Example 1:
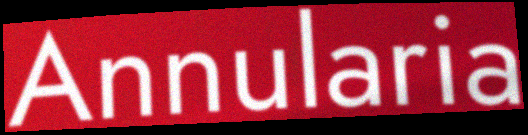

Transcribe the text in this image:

Annularia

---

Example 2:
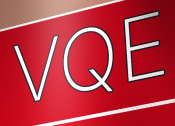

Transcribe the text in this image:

VQE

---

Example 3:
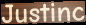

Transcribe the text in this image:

Justinc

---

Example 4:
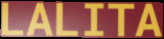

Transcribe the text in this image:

LALITA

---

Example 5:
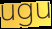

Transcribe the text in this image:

ugu